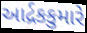
આર્દ્રકકુમારે